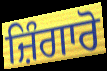
ਜ਼ਿੰਗਾਰੋ